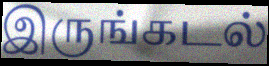
இருங்கடல்